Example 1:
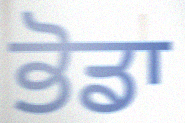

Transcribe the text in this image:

ਭੋਡਾ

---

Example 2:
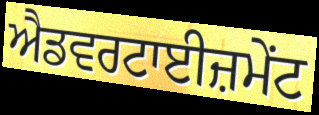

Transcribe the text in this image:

ਐਡਵਰਟਾਈਜ਼ਮੇਂਟ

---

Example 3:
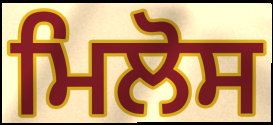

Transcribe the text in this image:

ਮਿਲੋਸ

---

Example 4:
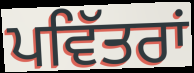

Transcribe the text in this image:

ਪਵਿੱਤਰਾਂ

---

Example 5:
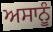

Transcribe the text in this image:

ਅਸਾਨੂੰ